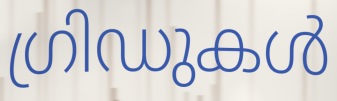
ഗ്രിഡുകൾ